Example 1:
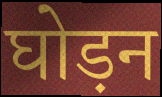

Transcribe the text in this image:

घोड़न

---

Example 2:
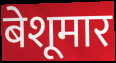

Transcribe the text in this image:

बेशूमार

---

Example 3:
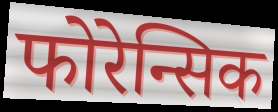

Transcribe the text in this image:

फोरेन्सिक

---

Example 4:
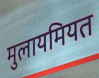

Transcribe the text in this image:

मुलायमियत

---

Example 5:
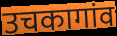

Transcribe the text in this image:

उचकागांव